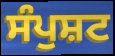
ਸੰਪੁਸ਼ਟ